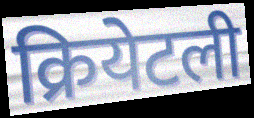
क्रियेटली